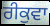
ਰੀਕੁਵਾ